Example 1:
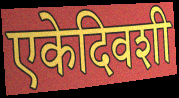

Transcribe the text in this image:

एकेदिवशी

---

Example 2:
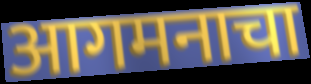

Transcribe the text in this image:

आगमनाचा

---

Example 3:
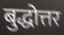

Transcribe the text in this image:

बुद्धोत्तर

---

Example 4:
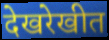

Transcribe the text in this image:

देखरेखीत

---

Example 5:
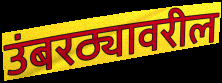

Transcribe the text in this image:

उंबरठ्यावरील